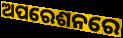
ଅପରେଶନରେ